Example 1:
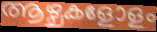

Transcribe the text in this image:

ആഴ്ചകളോളം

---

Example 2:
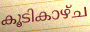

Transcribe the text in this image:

കൂടികാഴ്ച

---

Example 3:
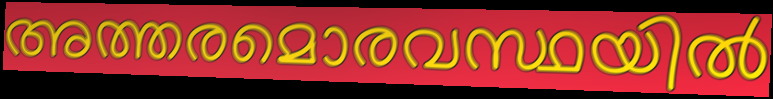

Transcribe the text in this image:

അത്തരമൊരവസ്ഥയിൽ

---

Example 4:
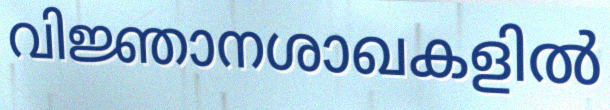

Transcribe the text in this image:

വിജ്ഞാനശാഖകളിൽ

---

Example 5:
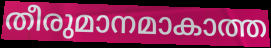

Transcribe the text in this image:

തീരുമാനമാകാത്ത